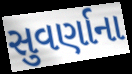
સુવર્ણાના